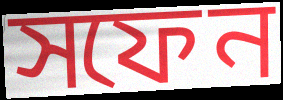
সফেন